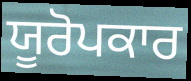
ਯੂਰੋਪਕਾਰ